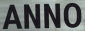
ANNO